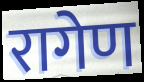
रागेण